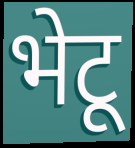
भेटू